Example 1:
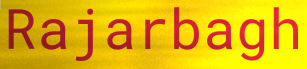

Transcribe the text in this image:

Rajarbagh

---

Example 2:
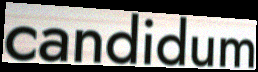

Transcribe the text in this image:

candidum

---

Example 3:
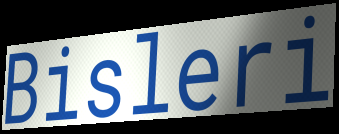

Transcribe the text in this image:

Bisleri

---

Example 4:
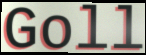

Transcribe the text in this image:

Goll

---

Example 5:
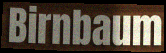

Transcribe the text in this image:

Birnbaum